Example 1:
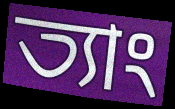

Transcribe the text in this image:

ত্যাং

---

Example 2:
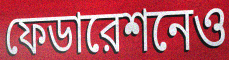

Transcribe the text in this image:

ফেডারেশনেও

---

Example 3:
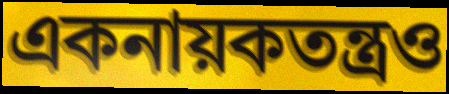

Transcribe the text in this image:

একনায়কতন্ত্রও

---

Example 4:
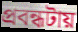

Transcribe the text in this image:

প্রবন্ধটায়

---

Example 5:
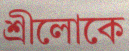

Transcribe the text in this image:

শ্রীলোকে